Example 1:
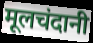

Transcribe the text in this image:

मूलचंदानी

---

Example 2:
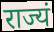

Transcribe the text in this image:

राज्यं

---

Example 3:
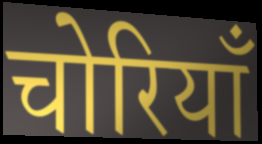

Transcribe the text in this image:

चोरियाँ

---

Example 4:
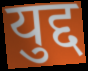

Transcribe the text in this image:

युद्द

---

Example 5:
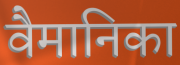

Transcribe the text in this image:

वैमानिका